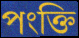
পংক্তি